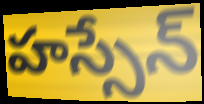
హస్సేన్